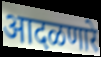
आदळणारे